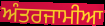
ਅੰਤਰਜਾਮੀਆ